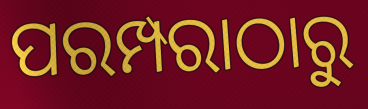
ପରମ୍ପରାଠାରୁ